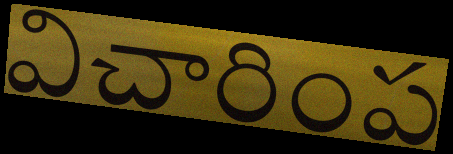
విచారింప